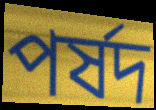
পর্ষদ